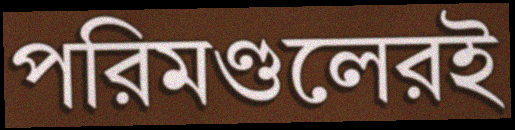
পরিমণ্ডলেরই